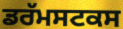
ਡਰੱਮਸਟਕਸ